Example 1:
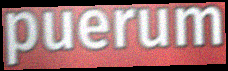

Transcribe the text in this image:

puerum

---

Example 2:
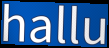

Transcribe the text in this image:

hallu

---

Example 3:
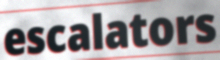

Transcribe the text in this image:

escalators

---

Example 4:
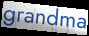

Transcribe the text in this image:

grandma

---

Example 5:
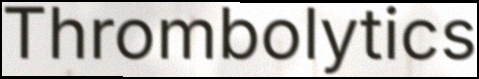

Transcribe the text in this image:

Thrombolytics